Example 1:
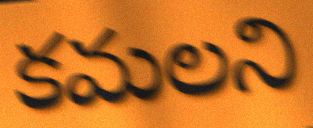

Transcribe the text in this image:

కమలని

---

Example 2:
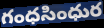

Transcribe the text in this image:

గంధసింధుర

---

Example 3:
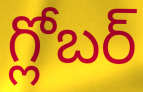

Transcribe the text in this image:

గ్లోబర్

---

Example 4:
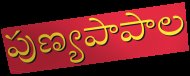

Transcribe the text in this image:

పుణ్యపాపాల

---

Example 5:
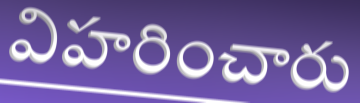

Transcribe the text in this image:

విహరించారు